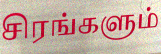
சிரங்களும்